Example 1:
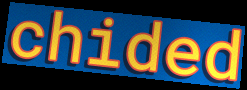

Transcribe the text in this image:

chided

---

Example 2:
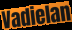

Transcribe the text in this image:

Vadielan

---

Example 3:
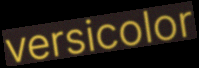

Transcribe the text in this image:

versicolor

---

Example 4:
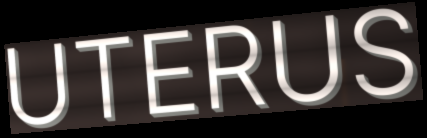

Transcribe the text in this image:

UTERUS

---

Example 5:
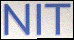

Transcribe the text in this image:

NIT